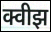
क्वीझ